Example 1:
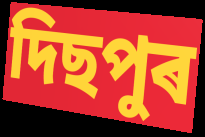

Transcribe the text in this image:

দিছপুৰ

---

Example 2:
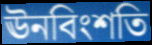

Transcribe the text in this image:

ঊনবিংশতি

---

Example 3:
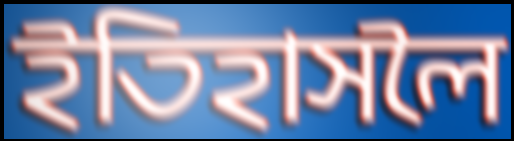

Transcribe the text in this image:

ইতিহাসলৈ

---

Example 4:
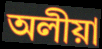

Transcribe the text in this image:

অলীয়া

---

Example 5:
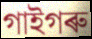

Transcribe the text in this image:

গাইগৰু